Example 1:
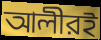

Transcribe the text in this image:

আলীরই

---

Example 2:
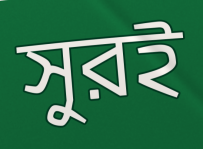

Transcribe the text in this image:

সুরই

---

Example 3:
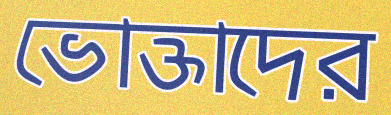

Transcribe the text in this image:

ভোক্তাদের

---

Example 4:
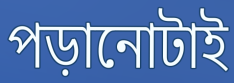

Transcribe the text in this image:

পড়ানোটাই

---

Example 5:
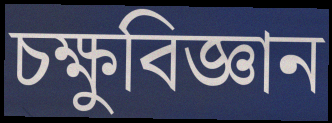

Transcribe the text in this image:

চক্ষুবিজ্ঞান